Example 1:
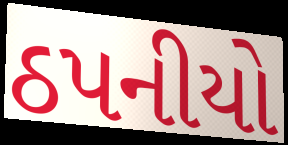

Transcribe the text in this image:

ઠપનીયો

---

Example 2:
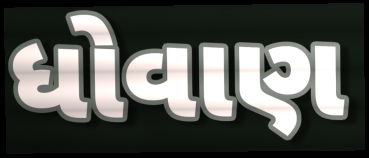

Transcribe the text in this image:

ધોવાણ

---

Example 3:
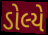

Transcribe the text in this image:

ડોલ્યે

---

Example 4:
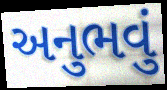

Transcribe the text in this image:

અનુભવું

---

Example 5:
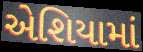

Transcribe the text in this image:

એશિયામાં